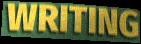
WRITING